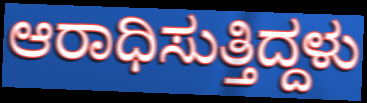
ಆರಾಧಿಸುತ್ತಿದ್ದಳು